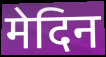
मेदिन